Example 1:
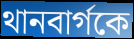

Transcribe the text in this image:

থানবার্গকে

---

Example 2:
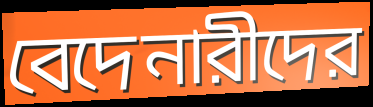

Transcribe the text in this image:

বেদেনারীদের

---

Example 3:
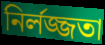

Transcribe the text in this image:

নির্লজ্জতা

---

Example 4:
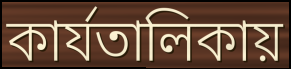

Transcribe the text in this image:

কার্যতালিকায়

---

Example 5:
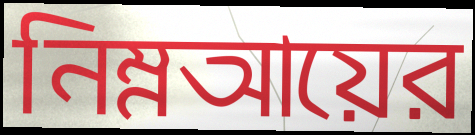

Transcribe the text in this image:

নিম্নআয়ের